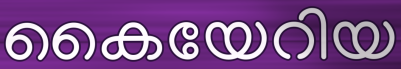
കൈയേറിയ